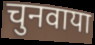
चुनवाया